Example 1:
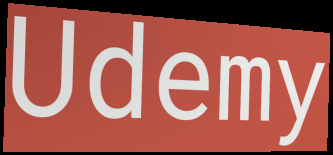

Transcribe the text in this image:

Udemy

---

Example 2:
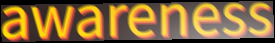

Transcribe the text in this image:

awareness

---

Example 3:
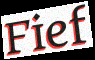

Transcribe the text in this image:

Fief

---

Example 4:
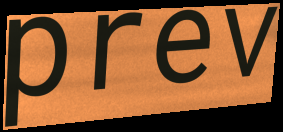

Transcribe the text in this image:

prev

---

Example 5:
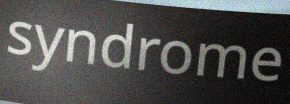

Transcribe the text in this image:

syndrome